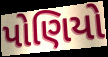
પોણિયો